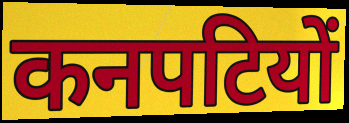
कनपटियों